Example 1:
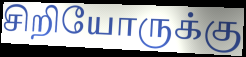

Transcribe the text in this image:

சிறியோருக்கு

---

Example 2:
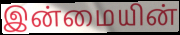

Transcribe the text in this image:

இன்மையின்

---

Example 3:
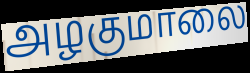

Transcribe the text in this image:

அழகுமாலை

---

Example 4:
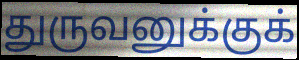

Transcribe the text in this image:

துருவனுக்குக்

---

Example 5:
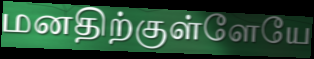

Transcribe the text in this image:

மனதிற்குள்ளேயே